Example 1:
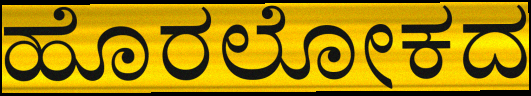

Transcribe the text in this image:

ಹೊರಲೋಕದ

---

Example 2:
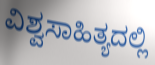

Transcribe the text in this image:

ವಿಶ್ವಸಾಹಿತ್ಯದಲ್ಲಿ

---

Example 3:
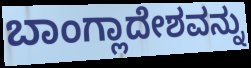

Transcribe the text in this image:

ಬಾಂಗ್ಲಾದೇಶವನ್ನು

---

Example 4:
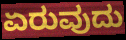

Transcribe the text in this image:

ಏರುವುದು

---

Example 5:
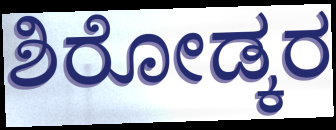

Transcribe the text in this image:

ಶಿರೋಡ್ಕರ